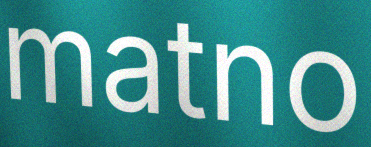
matno